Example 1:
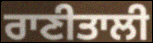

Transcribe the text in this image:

ਰਾਣੀਤਾਲੀ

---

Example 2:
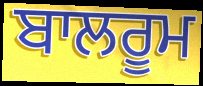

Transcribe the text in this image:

ਬਾਲਰੂਮ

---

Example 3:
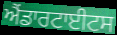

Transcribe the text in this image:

ਐਂਡਾਰਟਾਈਟਸ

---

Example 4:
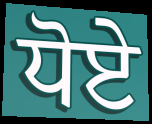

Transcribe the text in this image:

ਧੋਏ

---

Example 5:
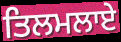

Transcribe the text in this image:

ਤਿਲਮਲਾਏ